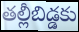
తల్లీబిడ్డకు